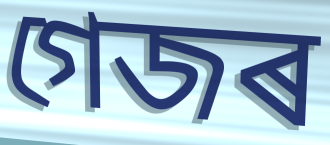
গেজৰ